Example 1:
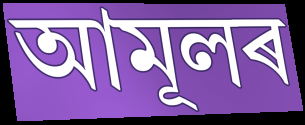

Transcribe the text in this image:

আমূলৰ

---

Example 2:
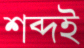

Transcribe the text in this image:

শব্দই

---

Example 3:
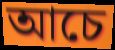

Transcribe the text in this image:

আচে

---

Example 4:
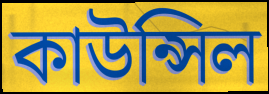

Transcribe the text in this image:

কাউন্সিল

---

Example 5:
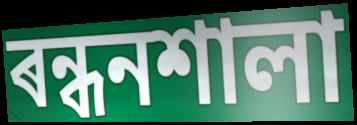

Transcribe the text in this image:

ৰন্ধনশালা